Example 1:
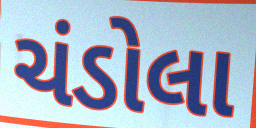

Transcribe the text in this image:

ચંડોલા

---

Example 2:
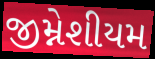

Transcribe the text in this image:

જીમ્નેશીયમ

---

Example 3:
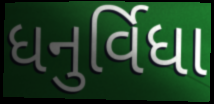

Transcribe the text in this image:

ધનુર્વિધા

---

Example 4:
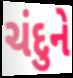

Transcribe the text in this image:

ચંદુને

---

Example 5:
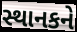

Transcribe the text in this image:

સ્થાનકને